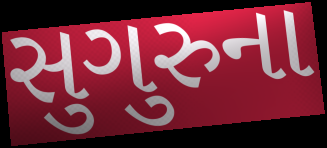
સુગુરુના